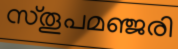
സ്തൂപമഞ്ജരി